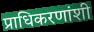
प्राधिकरणांशी